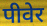
पीवेर